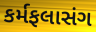
કર્મફલાસંગ